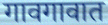
गावगावात